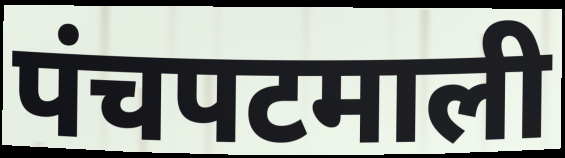
पंचपटमाली